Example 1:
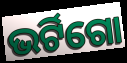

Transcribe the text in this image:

ଭର୍ଟିଗୋ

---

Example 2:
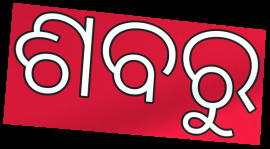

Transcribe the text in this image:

ଶବରୁ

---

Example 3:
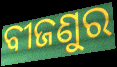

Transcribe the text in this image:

ବୀଜଣୁର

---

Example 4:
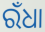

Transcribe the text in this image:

ରଁଧା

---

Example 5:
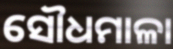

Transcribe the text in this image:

ସୌଧମାଳା